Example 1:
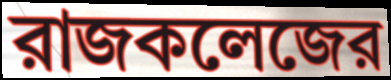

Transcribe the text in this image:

রাজকলেজের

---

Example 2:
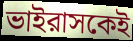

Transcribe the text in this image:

ভাইরাসকেই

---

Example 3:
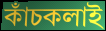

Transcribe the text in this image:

কাঁচকলাই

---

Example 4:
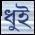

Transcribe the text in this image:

ধুই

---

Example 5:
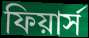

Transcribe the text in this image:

ফিয়ার্স